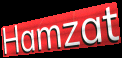
Hamzat